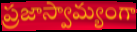
ప్రజాస్వామ్యంగా